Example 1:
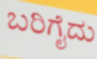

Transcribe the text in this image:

ಬರಿಗೈದು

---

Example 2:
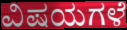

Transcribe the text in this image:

ವಿಷಯಗಳೆ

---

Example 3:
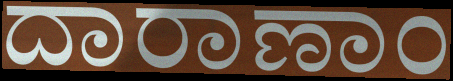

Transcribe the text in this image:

ದಾರಾಣಾಂ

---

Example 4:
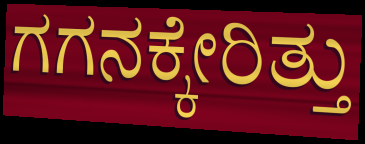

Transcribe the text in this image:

ಗಗನಕ್ಕೇರಿತ್ತು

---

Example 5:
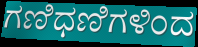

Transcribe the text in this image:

ಗಣಿಧಣಿಗಳಿಂದ